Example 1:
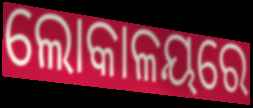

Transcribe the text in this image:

ଲୋକାଳୟରେ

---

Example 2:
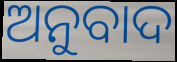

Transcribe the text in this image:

ଅନୁବାଦ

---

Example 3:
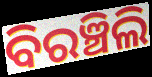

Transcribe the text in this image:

ବିରଞ୍ଚିଲି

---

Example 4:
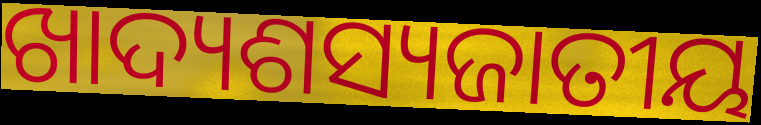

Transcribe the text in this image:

ଖାଦ୍ୟଶସ୍ୟଜାତୀୟ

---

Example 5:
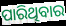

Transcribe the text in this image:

ପାରିଥିବାର